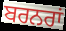
ਬਰਨਰਾਂ